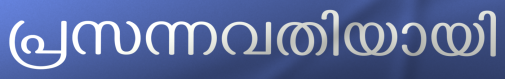
പ്രസന്നവതിയായി